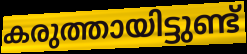
കരുത്തായിട്ടുണ്ട്